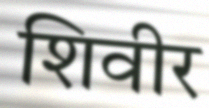
शिवीर